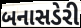
બનાસડેરી